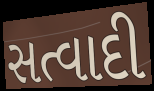
સત્વાદી